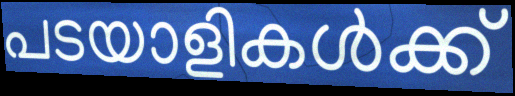
പടയാളികൾക്ക്